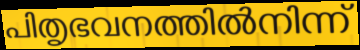
പിതൃഭവനത്തിൽനിന്ന്